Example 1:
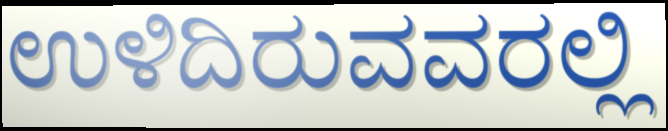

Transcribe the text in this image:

ಉಳಿದಿರುವವರಲ್ಲಿ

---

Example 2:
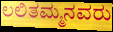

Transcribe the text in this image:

ಲಲಿತಮ್ಮನವರು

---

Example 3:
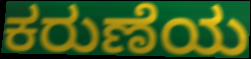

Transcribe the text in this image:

ಕರುಣೆಯ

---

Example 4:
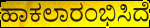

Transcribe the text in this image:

ಹಾಕಲಾರಂಭಿಸಿದೆ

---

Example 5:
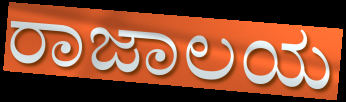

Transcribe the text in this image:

ರಾಜಾಲಯ